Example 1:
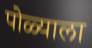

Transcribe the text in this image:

पोळ्याला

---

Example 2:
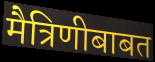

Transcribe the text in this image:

मैत्रिणीबाबत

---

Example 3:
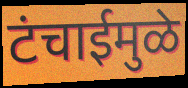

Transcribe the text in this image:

टंचाईमुळे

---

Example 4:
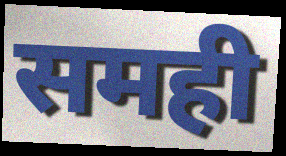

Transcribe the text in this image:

समही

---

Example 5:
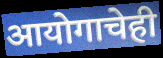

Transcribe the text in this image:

आयोगाचेही